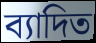
ব্যাদিত